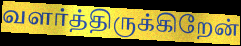
வளர்த்திருக்கிறேன்